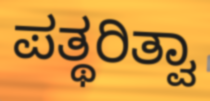
ಪತ್ಥರಿತ್ವಾ